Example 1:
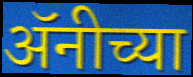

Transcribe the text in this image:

ॲनीच्या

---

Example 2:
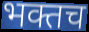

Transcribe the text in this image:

भक्तच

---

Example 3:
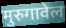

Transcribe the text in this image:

मुरुगावेल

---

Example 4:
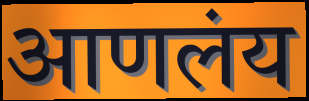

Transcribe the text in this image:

आणलंय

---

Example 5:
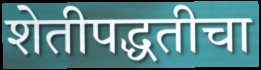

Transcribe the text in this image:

शेतीपद्धतीचा